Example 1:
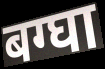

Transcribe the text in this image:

बग्घा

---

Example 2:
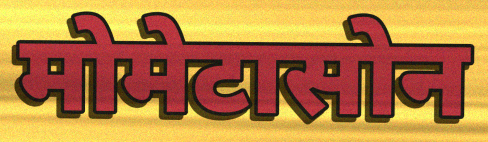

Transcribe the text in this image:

मोमेटासोन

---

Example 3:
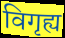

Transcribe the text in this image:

विगृह्य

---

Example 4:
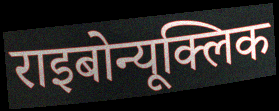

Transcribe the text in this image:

राइबोन्यूक्लिक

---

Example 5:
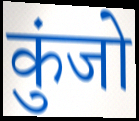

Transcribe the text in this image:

कुंजो